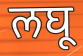
लघू